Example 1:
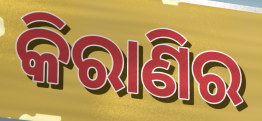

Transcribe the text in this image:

କିରାଣିର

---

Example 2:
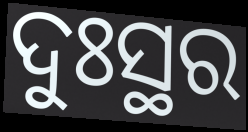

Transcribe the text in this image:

ଦୁଃସ୍ଥର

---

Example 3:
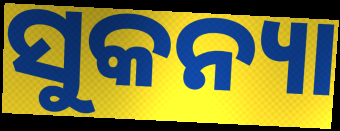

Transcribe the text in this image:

ସୁକନ୍ୟା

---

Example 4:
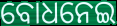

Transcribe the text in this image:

ବୋଧନେଇ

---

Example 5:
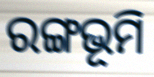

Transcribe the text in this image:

ରଙ୍ଗଭୂମି